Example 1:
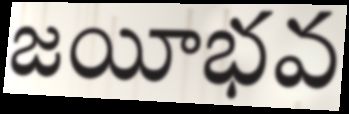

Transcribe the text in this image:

జయీభవ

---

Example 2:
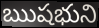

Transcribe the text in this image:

ఋషభుని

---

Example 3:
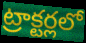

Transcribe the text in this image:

ట్రాక్టర్లలో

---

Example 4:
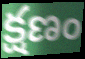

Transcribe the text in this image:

క్షణం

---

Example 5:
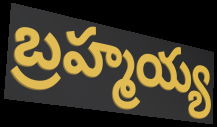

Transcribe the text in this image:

బ్రహ్మయ్య